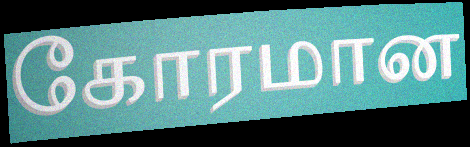
கோரமான